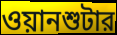
ওয়ানশুটার